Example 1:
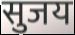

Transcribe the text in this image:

सुजय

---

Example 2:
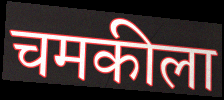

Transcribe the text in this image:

चमकीला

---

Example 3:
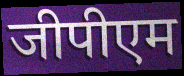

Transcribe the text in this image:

जीपीएम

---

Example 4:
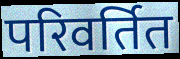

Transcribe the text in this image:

परिवर्तित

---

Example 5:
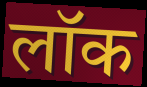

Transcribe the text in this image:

लॉक